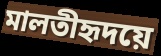
মালতীহৃদয়ে